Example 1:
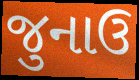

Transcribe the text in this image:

જુનાઉ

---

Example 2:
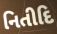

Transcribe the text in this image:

નિતીદિ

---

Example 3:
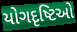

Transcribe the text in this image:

યોગદૃષ્ટિઓ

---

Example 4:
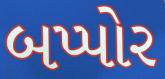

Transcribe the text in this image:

બપ્પોર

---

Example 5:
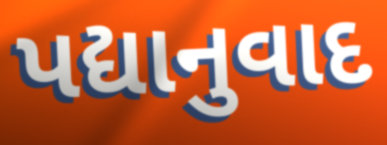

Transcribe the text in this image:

પદ્યાનુવાદ